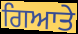
ਗਿਆਤੇ